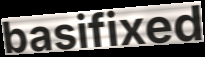
basifixed